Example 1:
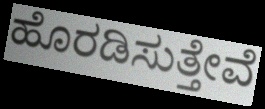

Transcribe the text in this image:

ಹೊರಡಿಸುತ್ತೇವೆ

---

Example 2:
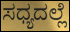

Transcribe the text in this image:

ಸಧ್ಯದಲ್ಲೆ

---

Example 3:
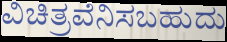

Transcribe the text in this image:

ವಿಚಿತ್ರವೆನಿಸಬಹುದು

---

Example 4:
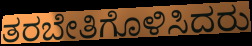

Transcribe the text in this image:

ತರಬೇತಿಗೊಳಿಸಿದರು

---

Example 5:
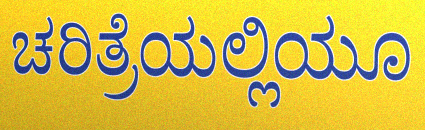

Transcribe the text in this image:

ಚರಿತ್ರೆಯಲ್ಲಿಯೂ